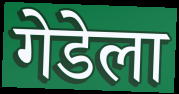
गेडेला